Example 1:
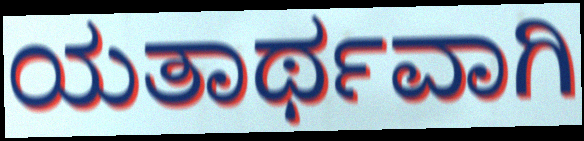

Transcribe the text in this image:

ಯತಾರ್ಥವಾಗಿ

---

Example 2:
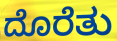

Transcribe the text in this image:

ದೊರೆತು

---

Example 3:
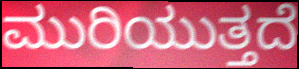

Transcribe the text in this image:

ಮುರಿಯುತ್ತದೆ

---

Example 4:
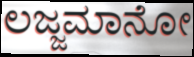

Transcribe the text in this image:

ಲಜ್ಜಮಾನೋ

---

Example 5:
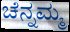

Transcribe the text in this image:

ಚೆನ್ನಮ್ಮ